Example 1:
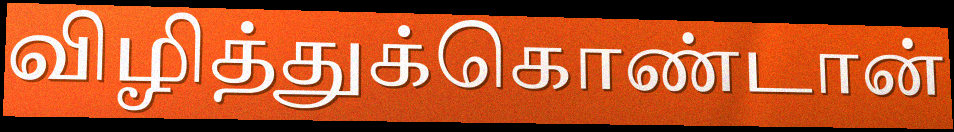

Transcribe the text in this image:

விழித்துக்கொண்டான்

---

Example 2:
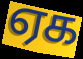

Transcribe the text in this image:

ஏக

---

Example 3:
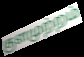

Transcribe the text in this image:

குளமுற்றம்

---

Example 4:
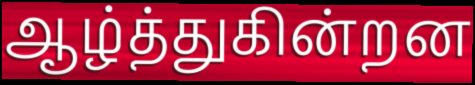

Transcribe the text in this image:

ஆழ்த்துகின்றன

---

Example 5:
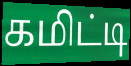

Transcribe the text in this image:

கமிட்டி